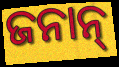
ଜନାନ୍